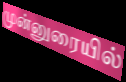
முன்னுரையில்